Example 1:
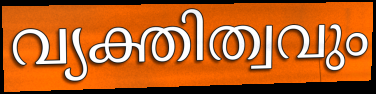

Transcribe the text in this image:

വ്യക്തിത്വവും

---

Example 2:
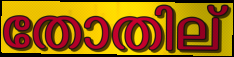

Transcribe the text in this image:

തോതില്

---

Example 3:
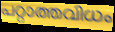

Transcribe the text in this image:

പറ്റാത്തവിധം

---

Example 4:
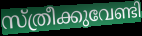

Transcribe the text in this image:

സ്ത്രീക്കുവേണ്ടി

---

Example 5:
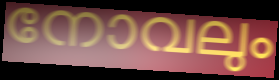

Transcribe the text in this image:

നോവലും